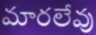
మారలేవు